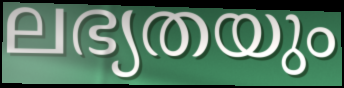
ലഭ്യതയും